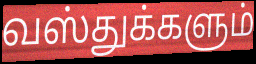
வஸ்துக்களும்